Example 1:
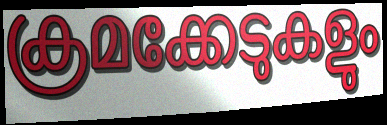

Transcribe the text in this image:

ക്രമക്കേടുകളും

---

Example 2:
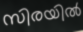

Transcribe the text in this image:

സിരയിൽ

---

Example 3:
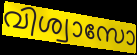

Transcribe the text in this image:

വിശ്വാസോ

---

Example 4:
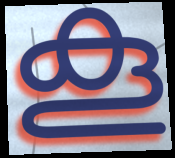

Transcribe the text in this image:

കൂ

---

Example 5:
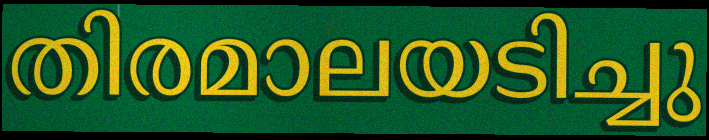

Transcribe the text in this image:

തിരമാലയടിച്ചു